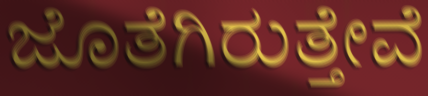
ಜೊತೆಗಿರುತ್ತೇವೆ